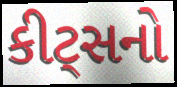
કીટ્સનો